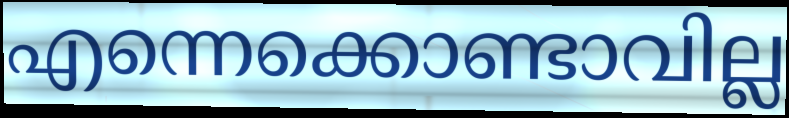
എന്നെക്കൊണ്ടാവില്ല